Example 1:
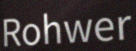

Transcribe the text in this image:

Rohwer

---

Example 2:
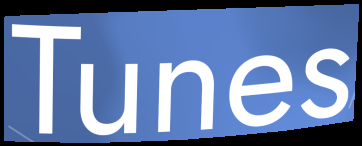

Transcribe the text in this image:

Tunes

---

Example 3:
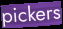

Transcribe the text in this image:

pickers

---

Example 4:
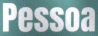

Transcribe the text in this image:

Pessoa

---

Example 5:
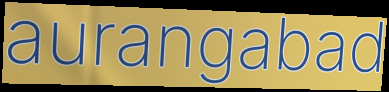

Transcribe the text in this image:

aurangabad